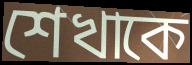
শেখাকে